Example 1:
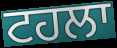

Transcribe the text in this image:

ਟਹਲਾ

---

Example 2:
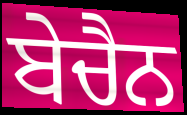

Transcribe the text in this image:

ਬੇਚੈਨ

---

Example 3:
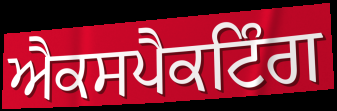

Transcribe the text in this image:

ਐਕਸਪੈਕਟਿੰਗ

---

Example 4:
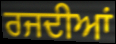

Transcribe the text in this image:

ਰਜਦੀਆਂ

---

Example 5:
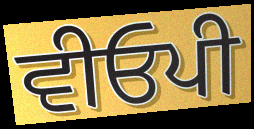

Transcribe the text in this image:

ਵੀਓਪੀ